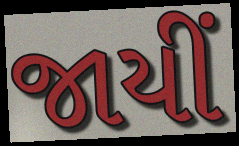
જાયીં